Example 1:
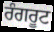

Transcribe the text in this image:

ਰੰਗਰੂਟ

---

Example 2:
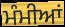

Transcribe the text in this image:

ਮੰਮੀਆਂ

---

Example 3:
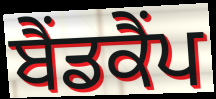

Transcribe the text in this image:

ਬੈਂਡਕੈਂਪ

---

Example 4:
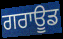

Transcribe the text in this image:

ਗਰਾਊਡ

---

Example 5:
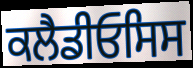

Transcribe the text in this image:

ਕਲੈਡੀਓਸਿਸ